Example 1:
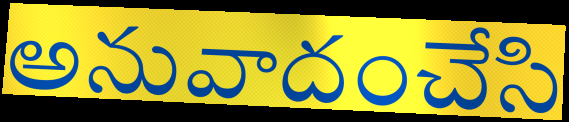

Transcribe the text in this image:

అనువాదంచేసి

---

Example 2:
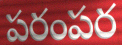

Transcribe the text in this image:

పరంపర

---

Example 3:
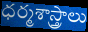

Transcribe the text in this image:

ధర్మశాస్త్రాలు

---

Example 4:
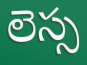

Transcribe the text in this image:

లెస్స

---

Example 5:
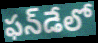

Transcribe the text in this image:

ఫన్‌డేలో